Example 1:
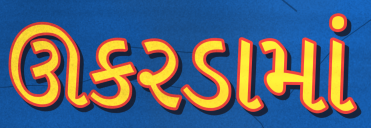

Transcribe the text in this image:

ઊકરડામાં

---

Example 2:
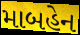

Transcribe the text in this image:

માબહેન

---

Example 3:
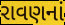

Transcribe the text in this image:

રાવણનાં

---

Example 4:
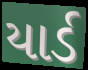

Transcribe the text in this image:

યાર્ડ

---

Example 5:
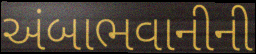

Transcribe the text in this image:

અંબાભવાનીની